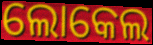
ଲୋକେଲ